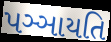
પઞ્ઞાયતિ